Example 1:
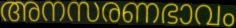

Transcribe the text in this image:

അനസരണഭാവം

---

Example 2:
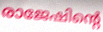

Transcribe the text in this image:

രാജേഷിന്റെ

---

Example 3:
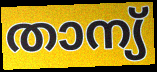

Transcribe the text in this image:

താന്യ്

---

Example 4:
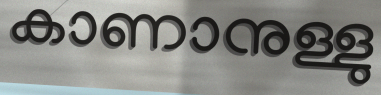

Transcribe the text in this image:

കാണാനുള്ളു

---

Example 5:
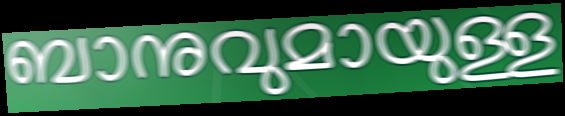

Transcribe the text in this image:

ബാനുവുമായുള്ള